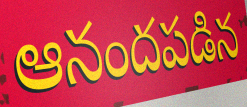
ఆనందపడిన